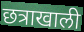
छत्राखाली